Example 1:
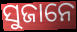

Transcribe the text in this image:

ସୁଜାନେ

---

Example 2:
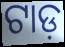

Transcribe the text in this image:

ଟାଡ଼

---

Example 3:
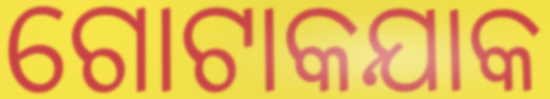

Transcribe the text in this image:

ଗୋଟାକଯାକ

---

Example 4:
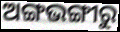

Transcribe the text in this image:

ଅଙ୍ଗଭଙ୍ଗୀରୁ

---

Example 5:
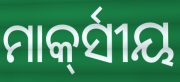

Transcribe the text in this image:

ମାର୍କ୍‍ସୀୟ